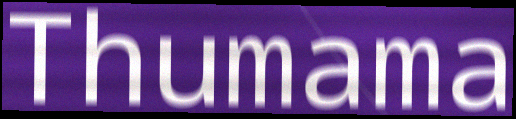
Thumama